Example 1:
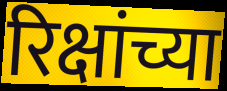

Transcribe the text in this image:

रिक्षांच्या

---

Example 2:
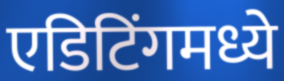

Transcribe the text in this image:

एडिटिंगमध्ये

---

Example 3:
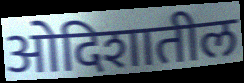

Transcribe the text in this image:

ओदिशातील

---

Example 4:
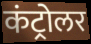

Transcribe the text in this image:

कंट्रोलर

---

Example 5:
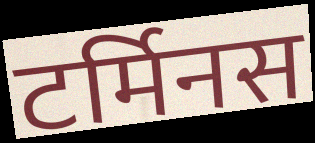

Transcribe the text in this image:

टर्मिनस